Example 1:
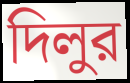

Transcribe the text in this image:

দিলুর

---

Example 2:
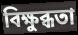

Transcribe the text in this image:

বিক্ষুব্ধতা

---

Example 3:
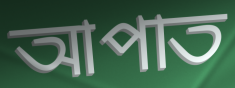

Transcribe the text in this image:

আপাত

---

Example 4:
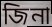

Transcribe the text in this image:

জিনা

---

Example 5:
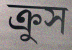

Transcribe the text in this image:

ক্রুস